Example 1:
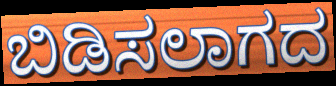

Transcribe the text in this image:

ಬಿಡಿಸಲಾಗದ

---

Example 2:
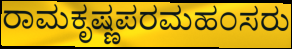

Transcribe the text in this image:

ರಾಮಕೃಷ್ಣಪರಮಹಂಸರು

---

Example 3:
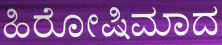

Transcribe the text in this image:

ಹಿರೋಷಿಮಾದ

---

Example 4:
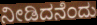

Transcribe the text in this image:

ನೀಡಿದನೆಂದು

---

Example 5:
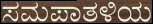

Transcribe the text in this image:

ಸಮಪಾತಳಿಯ